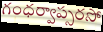
గంధర్వాప్సరసో